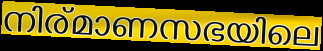
നിര്മാണസഭയിലെ